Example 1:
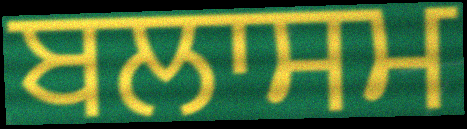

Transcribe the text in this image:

ਬਲਾਸਮ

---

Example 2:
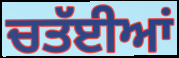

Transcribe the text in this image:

ਚਤੱਈਆਂ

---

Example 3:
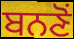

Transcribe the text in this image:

ਬਨਣੋਂ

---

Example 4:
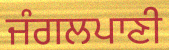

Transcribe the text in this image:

ਜੰਗਲਪਾਣੀ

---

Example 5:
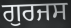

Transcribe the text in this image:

ਗੁਰਜਸ